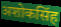
अशोकसिंह